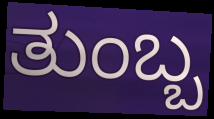
ತುಂಬ್ಬ